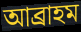
আব্ৰাহম